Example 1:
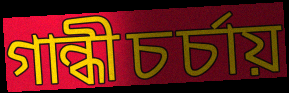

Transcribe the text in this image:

গান্ধীচর্চায়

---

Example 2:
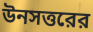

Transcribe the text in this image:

উনসত্তরের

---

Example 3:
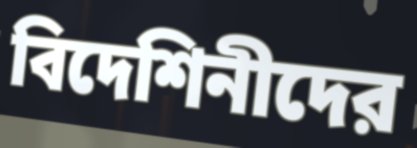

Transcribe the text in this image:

বিদেশিনীদের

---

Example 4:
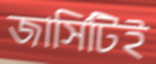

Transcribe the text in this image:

জার্সিটিই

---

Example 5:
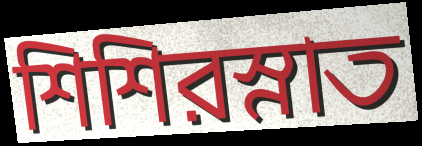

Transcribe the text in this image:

শিশিরস্নাত